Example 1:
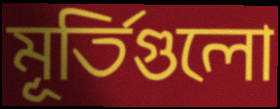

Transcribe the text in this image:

মূর্তিগুলো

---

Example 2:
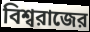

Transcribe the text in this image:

বিশ্বরাজের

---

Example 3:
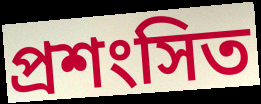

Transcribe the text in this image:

প্রশংসিত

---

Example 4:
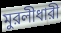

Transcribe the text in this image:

মুরলীধারী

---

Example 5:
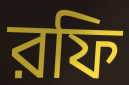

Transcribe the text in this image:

রফি